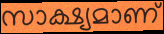
സാക്ഷ്യമാണ്